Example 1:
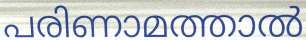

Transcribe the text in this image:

പരിണാമത്താൽ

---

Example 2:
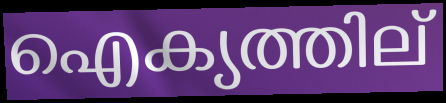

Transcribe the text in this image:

ഐക്യത്തില്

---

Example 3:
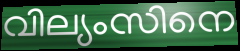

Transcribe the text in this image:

വില്യംസിനെ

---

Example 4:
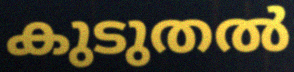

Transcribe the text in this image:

കുടുതൽ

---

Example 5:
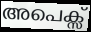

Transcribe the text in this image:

അപെക്സ്